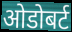
ओडोबर्ट